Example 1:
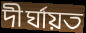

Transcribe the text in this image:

দীর্ঘায়ত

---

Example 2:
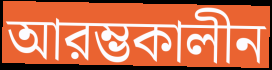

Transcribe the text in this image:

আরম্ভকালীন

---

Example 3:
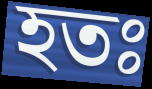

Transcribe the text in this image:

হতঃ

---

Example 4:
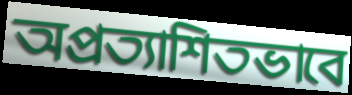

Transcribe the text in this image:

অপ্রত্যাশিতভাবে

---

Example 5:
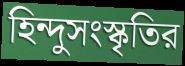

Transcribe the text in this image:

হিন্দুসংস্কৃতির